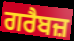
ਗਰੈਬਜ਼